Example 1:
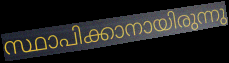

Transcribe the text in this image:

സ്ഥാപിക്കാനായിരുന്നു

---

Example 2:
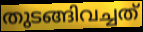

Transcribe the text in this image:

തുടങ്ങിവച്ചത്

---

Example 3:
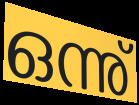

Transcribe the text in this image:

ഒന്നു്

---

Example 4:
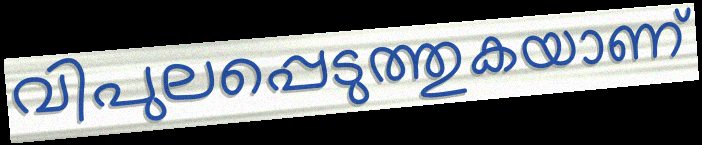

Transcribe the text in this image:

വിപുലപ്പെടുത്തുകയാണ്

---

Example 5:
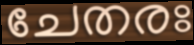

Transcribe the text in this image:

ചേതരഃ